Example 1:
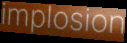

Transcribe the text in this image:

implosion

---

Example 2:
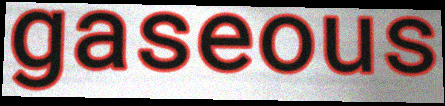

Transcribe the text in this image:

gaseous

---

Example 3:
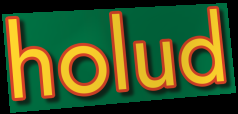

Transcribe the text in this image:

holud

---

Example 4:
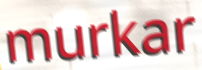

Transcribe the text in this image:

murkar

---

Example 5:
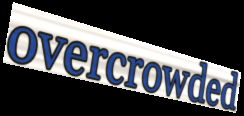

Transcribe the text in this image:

overcrowded